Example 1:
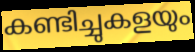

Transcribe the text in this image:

കണ്ടിച്ചുകളയും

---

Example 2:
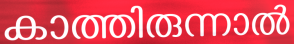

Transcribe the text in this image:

കാത്തിരുന്നാൽ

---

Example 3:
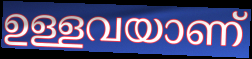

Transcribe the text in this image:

ഉള്ളവയാണ്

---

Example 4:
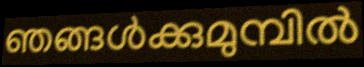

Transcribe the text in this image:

ഞങ്ങൾക്കുമുമ്പിൽ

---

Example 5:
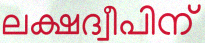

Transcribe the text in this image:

ലക്ഷദ്വീപിന്